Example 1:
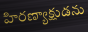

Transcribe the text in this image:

హిరణ్యాక్షుడను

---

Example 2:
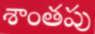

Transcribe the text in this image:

శాంతపు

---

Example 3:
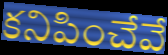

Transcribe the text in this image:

కనిపించేవే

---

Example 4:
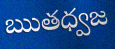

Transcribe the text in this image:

ఋతధ్వజ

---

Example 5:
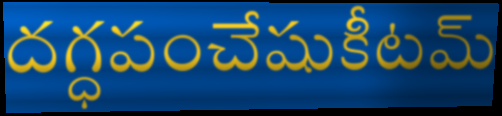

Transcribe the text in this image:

దగ్ధపంచేషుకీటమ్